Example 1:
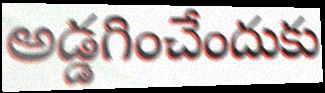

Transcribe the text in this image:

అడ్డగించేందుకు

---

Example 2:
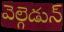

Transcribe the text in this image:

వెల్గెడున్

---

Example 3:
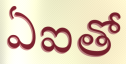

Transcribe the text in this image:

ఏఐతో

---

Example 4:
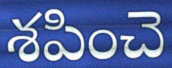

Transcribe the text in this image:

శపించె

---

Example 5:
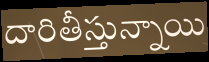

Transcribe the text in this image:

దారితీస్తున్నాయి